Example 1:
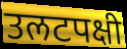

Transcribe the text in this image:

उलटपक्षी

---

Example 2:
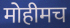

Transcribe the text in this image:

मोहीमच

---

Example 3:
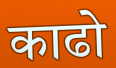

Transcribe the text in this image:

काढो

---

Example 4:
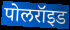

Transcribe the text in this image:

पोलरॉइड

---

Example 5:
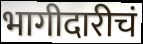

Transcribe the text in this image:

भागीदारीचं